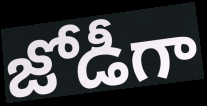
జోడీగా